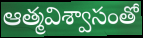
ఆత్మవిశ్వాసంతో